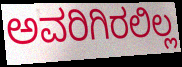
ಅವರಿಗಿರಲಿಲ್ಲ